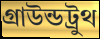
গ্রাউন্ডট্রুথ